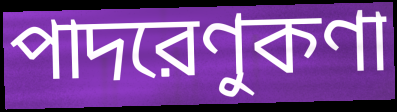
পাদরেণুকণা